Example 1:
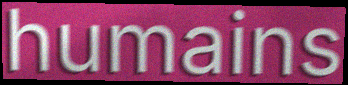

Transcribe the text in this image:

humains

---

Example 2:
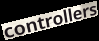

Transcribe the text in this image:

controllers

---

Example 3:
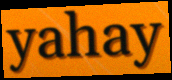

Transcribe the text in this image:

yahay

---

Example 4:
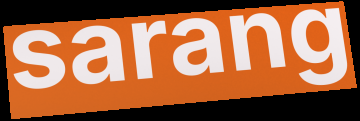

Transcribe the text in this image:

sarang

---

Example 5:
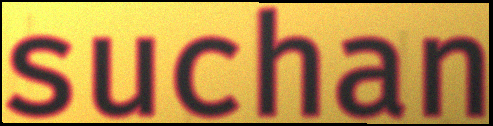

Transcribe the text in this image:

suchan